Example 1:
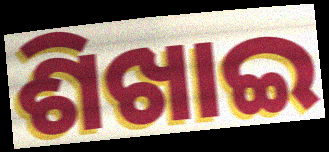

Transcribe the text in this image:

ଶିଖାଇ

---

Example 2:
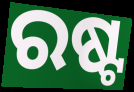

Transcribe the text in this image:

ରଷ୍ଟ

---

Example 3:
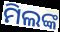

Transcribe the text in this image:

ମିଲଙ୍କ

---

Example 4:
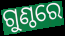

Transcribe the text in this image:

ଗୁଣ୍ଠରେ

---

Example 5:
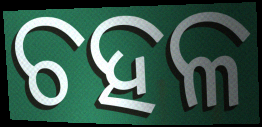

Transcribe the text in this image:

ଚହଳ